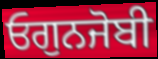
ਓਗੁਨਜੋਬੀ